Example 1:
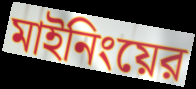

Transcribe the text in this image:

মাইনিংয়ের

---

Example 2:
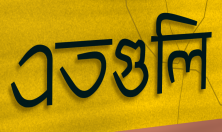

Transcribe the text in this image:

এতগুলি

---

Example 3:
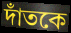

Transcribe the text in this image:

দাঁতকে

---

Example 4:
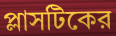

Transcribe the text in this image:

প্লাসটিকের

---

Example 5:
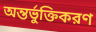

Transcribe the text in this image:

অন্তর্ভুক্তিকরণ